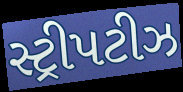
સ્ટ્રીપટીઝ